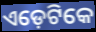
ଏଡ଼େଟିକେ